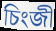
চিংজী